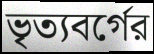
ভৃত্যবর্গের